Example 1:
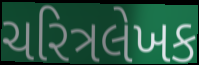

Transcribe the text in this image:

ચરિત્રલેખક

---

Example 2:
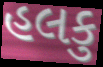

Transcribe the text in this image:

હલકુ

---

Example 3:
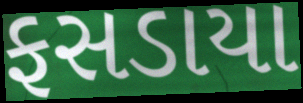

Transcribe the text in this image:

ફસડાયા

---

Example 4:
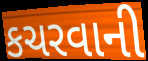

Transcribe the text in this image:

કચરવાની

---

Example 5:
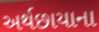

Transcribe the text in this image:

અર્થછાયાના